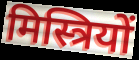
मिस्त्रियों